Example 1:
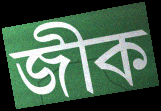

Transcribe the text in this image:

জীক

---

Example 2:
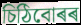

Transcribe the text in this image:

চিঠিবোৰৰ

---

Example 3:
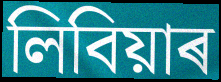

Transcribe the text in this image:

লিবিয়াৰ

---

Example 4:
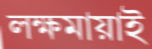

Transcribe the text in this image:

লক্ষমায়াই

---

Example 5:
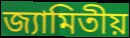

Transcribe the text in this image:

জ্যামিতীয়